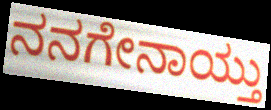
ನನಗೇನಾಯ್ತು